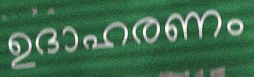
ഉദാഹരണം